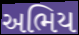
અભિય